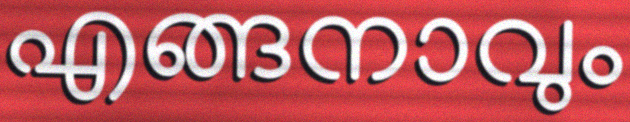
എങ്ങനാവും